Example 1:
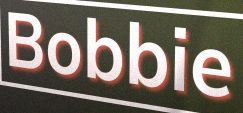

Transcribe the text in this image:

Bobbie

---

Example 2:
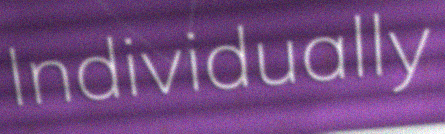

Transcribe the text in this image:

Individually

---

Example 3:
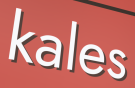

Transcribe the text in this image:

kales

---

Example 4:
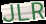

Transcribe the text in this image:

JLR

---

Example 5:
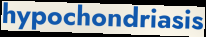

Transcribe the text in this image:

hypochondriasis